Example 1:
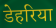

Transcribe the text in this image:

डेहरिया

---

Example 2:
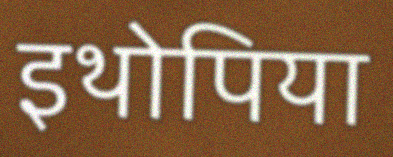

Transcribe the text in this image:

इथोपिया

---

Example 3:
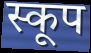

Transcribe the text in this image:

स्कूप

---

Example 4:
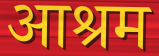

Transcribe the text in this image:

आश्रम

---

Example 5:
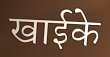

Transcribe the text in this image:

खाईके